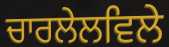
ਚਾਰਲੇਲਵਿਲੇ